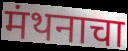
मंथनाचा